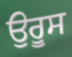
ਉਰੂਸ